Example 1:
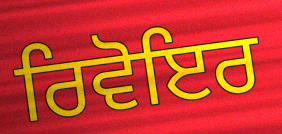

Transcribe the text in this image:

ਰਿਵੋਇਰ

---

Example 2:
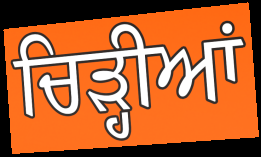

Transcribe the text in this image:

ਚਿੜ੍ਹੀਆਂ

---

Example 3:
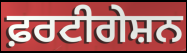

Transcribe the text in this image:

ਫ਼ਰਟੀਗੇਸ਼ਨ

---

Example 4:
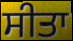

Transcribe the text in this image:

ਸੀਤਾ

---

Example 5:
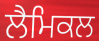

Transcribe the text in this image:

ਲੈਮਿਕਲ